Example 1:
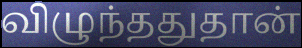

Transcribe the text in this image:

விழுந்ததுதான்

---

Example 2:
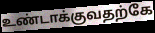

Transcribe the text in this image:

உண்டாக்குவதற்கே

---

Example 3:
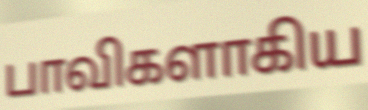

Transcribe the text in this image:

பாவிகளாகிய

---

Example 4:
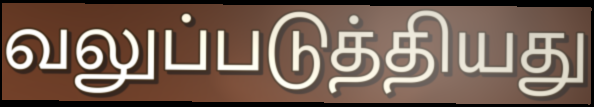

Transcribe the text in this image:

வலுப்படுத்தியது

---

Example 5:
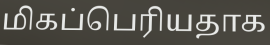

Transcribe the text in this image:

மிகப்பெரியதாக